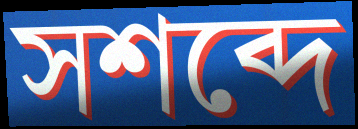
সশব্দে